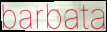
barbata